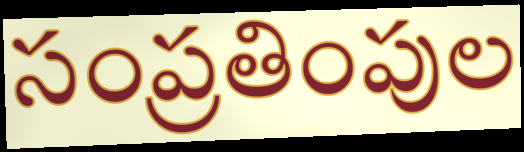
సంప్రతింపుల